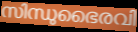
സിന്ധുഭൈരവി